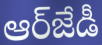
ఆర్‌జేడీ